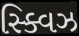
સ્ક્વિઝ